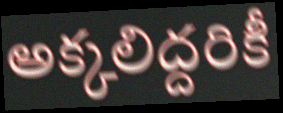
అక్కలిద్దరికీ